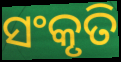
ସଂକୃତି